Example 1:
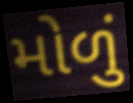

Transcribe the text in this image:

મોળું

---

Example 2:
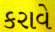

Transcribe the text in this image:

કરાવે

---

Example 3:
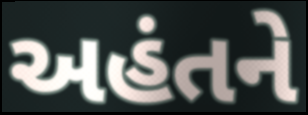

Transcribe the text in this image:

અહંતને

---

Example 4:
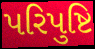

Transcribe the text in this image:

પરિપુષ્ટિ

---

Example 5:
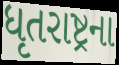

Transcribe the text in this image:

ધૃતરાષ્ટ્રના